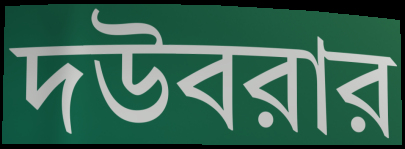
দউবরার